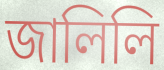
জালিলি